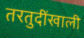
तरतुदींखाली